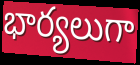
భార్యలుగా